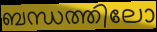
ബന്ധത്തിലോ